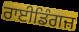
ਰਾਈਡਿੰਗਜ਼